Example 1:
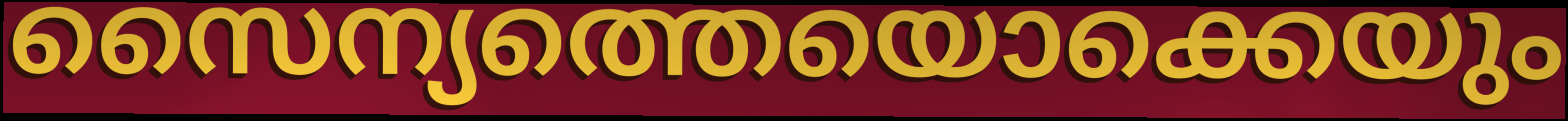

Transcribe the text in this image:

സൈന്യത്തെയൊക്കെയും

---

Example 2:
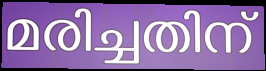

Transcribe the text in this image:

മരിച്ചതിന്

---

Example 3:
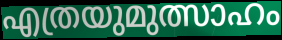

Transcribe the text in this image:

എത്രയുമുത്സാഹം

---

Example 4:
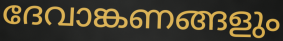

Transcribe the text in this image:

ദേവാങ്കണങ്ങളും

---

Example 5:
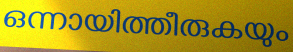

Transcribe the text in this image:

ഒന്നായിത്തീരുകയും